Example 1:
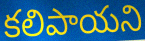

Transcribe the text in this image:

కలిపాయని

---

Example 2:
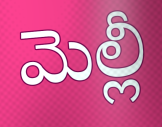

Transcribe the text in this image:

మెల్లీ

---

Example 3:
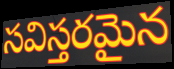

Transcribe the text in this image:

సవిస్తరమైన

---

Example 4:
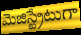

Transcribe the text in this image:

మెజిస్ట్రేటుగా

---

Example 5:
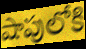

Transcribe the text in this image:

షాపులోకి